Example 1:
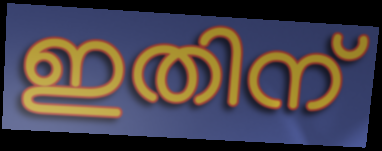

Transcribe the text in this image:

ഇതിന്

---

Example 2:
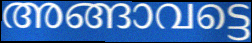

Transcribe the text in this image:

അങ്ങാവട്ടെ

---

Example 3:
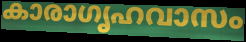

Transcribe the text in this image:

കാരാഗൃഹവാസം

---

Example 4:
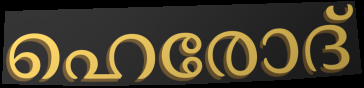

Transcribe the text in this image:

ഹെരോദ്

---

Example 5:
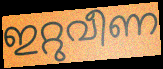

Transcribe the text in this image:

ഇറ്റുവീണ